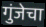
गुंजेचा